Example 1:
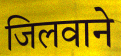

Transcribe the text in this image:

जिलवाने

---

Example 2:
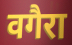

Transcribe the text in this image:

वगैरा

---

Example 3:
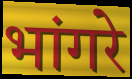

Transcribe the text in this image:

भांगरे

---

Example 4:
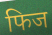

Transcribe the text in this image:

फिज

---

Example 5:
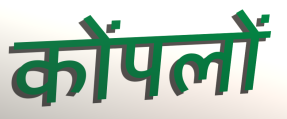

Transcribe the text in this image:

कोंपलों